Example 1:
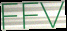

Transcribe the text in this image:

FFV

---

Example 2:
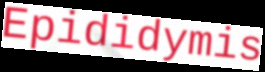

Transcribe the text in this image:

Epididymis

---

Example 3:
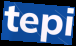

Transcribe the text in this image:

tepi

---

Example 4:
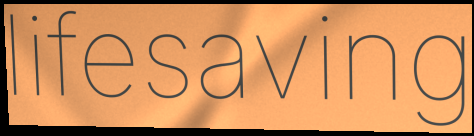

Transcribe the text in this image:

lifesaving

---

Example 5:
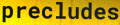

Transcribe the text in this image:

precludes